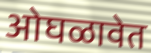
ओघळावेत